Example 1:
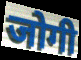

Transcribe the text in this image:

जोगी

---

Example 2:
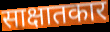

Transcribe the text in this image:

साक्षातकार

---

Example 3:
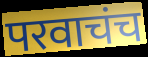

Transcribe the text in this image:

परवाचंच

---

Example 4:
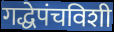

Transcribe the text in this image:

गद्धेपंचविशी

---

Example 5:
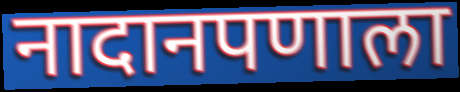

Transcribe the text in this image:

नादानपणाला